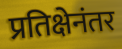
प्रतिक्षेनंतर